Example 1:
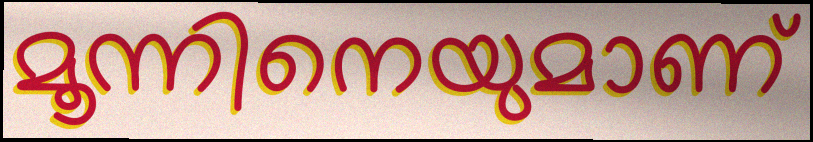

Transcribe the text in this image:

മൂന്നിനെയുമാണ്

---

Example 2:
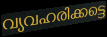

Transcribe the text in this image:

വ്യവഹരിക്കട്ടെ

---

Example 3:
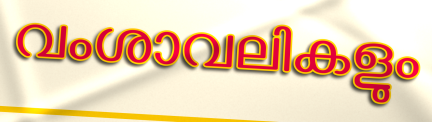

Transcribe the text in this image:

വംശാവലികളും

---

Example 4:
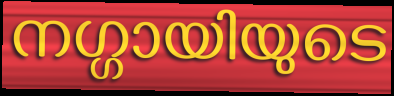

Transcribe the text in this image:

നഗ്ഗായിയുടെ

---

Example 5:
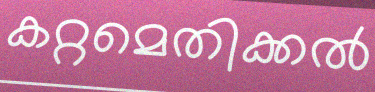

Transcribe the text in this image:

കറ്റമെതിക്കൽ